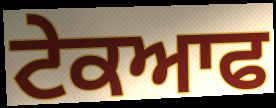
ਟੇਕਆਫ